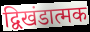
द्विखंडात्मक